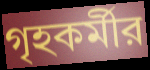
গৃহকর্মীর